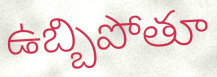
ఉబ్బిపోతూ